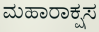
ಮಹಾರಾಕ್ಷಸ